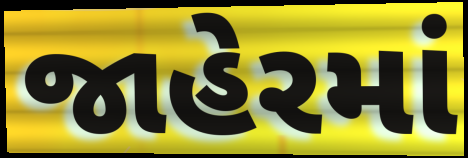
જાહેરમાં